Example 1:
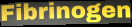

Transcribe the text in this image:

Fibrinogen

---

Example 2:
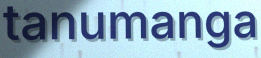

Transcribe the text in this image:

tanumanga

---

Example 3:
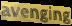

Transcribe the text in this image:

avenging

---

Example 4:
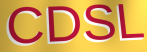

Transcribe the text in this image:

CDSL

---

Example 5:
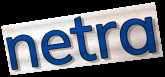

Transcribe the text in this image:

netra